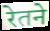
रेतने